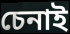
চেনাই